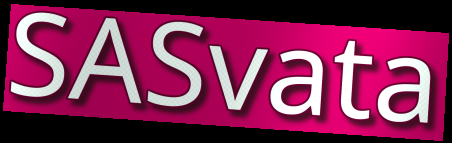
SASvata